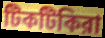
টিকটিকিরা